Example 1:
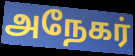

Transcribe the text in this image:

அநேகர்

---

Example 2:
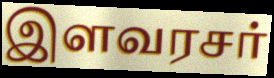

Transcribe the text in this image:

இளவரசர்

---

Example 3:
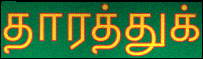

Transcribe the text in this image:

தாரத்துக்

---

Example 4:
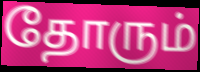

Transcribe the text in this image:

தோரும்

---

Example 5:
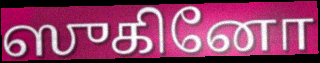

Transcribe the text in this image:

ஸுகினோ